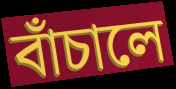
বাঁচালে